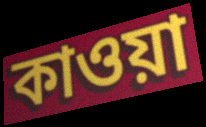
কাওয়া